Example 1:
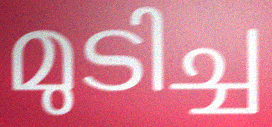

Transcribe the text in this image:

മുടിച്ച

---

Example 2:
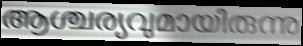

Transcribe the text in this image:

ആശ്ചര്യവുമായിരുന്നു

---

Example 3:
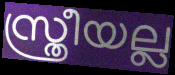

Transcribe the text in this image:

സ്ത്രീയല്ല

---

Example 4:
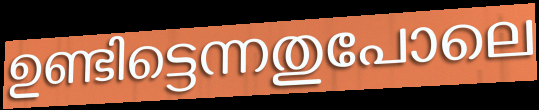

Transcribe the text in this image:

ഉണ്ടിട്ടെന്നതുപോലെ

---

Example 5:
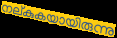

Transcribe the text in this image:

നല്കുകയായിരുന്നു